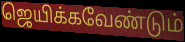
ஜெயிக்கவேண்டும்